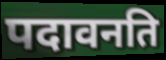
पदावनति